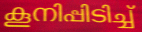
കൂനിപ്പിടിച്ച്